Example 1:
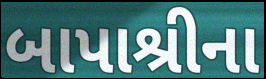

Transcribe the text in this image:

બાપાશ્રીના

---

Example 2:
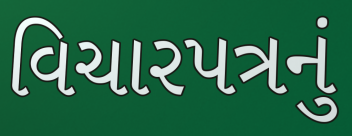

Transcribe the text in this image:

વિચારપત્રનું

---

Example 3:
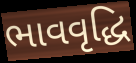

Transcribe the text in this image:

ભાવવૃદ્ધિ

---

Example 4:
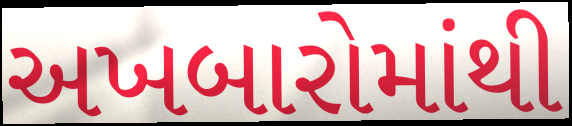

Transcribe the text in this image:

અખબારોમાંથી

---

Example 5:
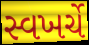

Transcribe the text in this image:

સ્વખર્ચે